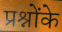
प्रश्नोंके